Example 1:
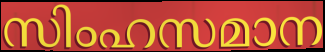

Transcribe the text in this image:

സിംഹസമാന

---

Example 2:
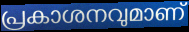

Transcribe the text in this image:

പ്രകാശനവുമാണ്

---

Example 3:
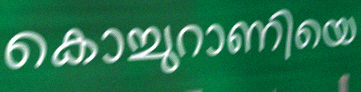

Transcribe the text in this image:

കൊച്ചുറാണിയെ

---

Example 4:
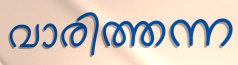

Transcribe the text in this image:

വാരിത്തന്ന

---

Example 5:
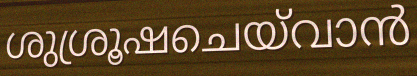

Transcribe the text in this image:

ശുശ്രൂഷചെയ്‌വാൻ